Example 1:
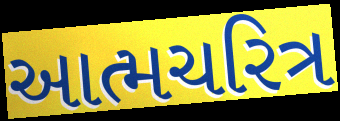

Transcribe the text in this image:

આત્મચરિત્ર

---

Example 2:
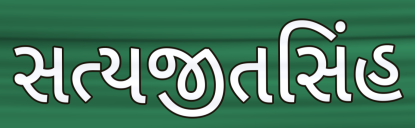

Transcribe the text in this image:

સત્યજીતસિંહ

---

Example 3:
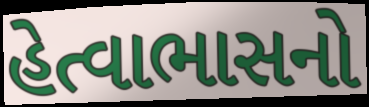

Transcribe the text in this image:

હેત્વાભાસનો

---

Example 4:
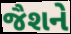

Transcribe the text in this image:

જૈશને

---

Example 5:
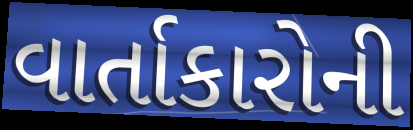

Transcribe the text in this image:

વાર્તાકારોની